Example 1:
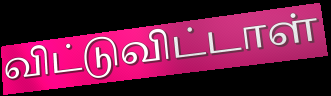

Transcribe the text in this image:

விட்டுவிட்டாள்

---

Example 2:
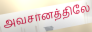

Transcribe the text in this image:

அவசானத்திலே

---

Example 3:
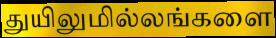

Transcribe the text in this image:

துயிலுமில்லங்களை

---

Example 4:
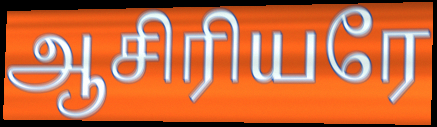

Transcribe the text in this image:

ஆசிரியரே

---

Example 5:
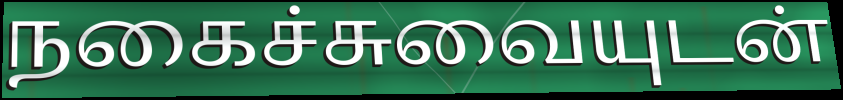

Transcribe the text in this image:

நகைச்சுவையுடன்